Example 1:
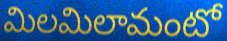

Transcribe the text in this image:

మిలమిలామంటో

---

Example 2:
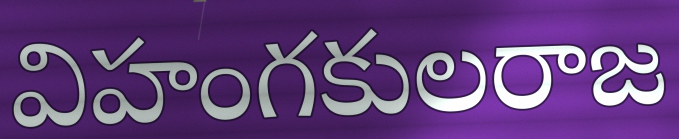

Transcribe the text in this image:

విహంగకులరాజ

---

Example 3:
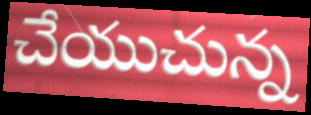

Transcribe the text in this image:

చేయుచున్న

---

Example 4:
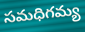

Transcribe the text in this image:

సమధిగమ్య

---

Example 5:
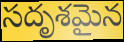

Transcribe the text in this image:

సదృశమైన